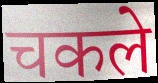
चकले